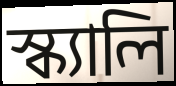
স্ক্যালি